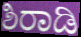
ಶಿರಾಡಿ